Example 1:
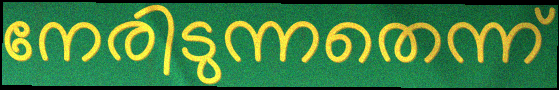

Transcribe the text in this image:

നേരിടുന്നതെന്ന്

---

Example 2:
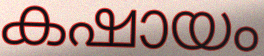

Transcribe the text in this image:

കഷായം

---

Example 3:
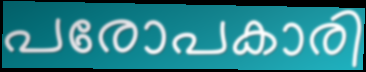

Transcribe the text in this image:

പരോപകാരി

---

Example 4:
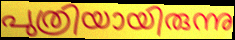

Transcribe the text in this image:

പുത്രിയായിരുന്നു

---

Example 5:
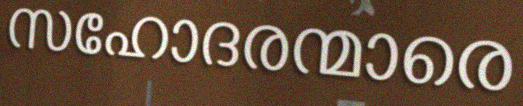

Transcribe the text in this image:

സഹോദരന്മാരെ